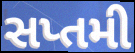
સપ્તમી